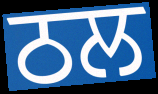
ਠਲ